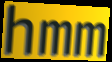
hmm